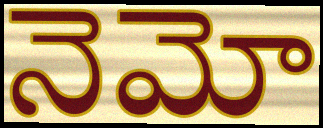
నెమో